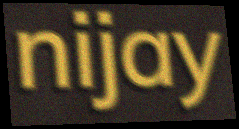
nijay